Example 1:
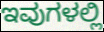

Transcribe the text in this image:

ಇವುಗಳಲ್ಲಿ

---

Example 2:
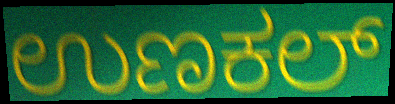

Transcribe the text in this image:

ಉಣಕಲ್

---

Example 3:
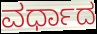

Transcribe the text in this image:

ವರ್ಧಾದ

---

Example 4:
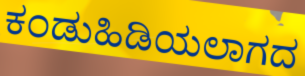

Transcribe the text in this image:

ಕಂಡುಹಿಡಿಯಲಾಗದ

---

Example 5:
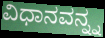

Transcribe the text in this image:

ವಿಧಾನವನ್ನ್ನ